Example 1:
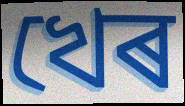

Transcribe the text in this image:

খেৰ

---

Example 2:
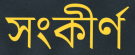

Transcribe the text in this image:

সংকীৰ্ণ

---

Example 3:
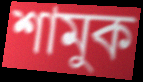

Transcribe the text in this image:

শামুক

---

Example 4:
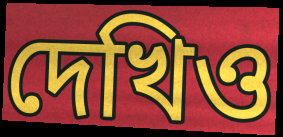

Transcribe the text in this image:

দেখিও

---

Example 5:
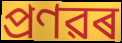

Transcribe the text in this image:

প্ৰণৱৰ